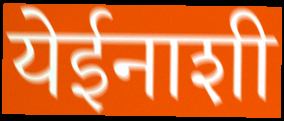
येईनाशी